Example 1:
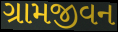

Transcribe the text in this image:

ગ્રામજીવન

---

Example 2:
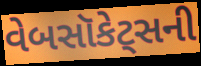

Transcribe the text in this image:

વેબસૉકેટ્સની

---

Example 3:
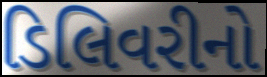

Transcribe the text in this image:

ડિલિવરીનો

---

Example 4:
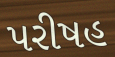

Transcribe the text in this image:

પરીષહ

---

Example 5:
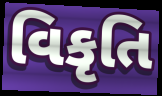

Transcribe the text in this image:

વિકૃતિ